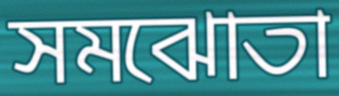
সমঝোতা